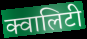
क्‍वालिटी